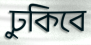
ঢুকিবে